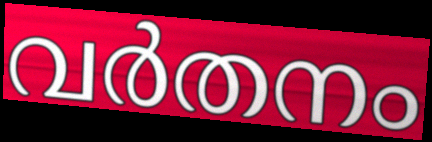
വർതനം